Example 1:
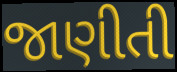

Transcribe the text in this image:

જાણીતી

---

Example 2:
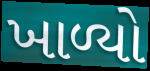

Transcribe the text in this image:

ખાળ્યો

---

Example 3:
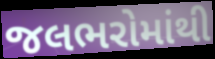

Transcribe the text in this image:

જલભરોમાંથી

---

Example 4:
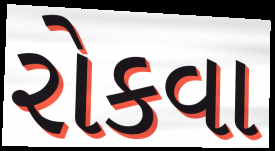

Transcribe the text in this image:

રોકવા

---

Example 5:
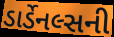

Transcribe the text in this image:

ડાર્ડેનલ્સની